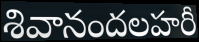
శివానందలహరీ